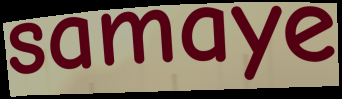
samaye